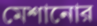
মেশানোর